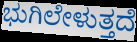
ಭುಗಿಲೇಳುತ್ತದೆ